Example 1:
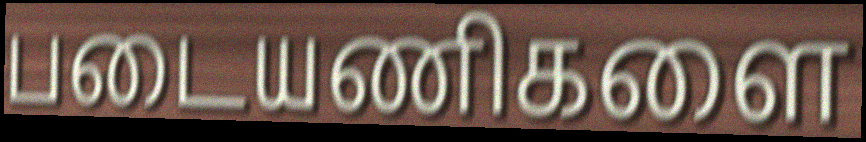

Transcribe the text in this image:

படையணிகளை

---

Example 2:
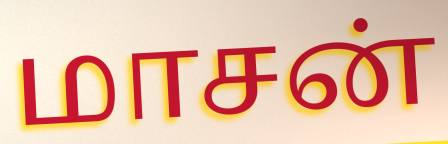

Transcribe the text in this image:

மாசன்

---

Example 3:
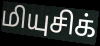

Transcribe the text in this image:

மியுசிக்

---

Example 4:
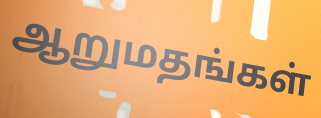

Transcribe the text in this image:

ஆறுமதங்கள்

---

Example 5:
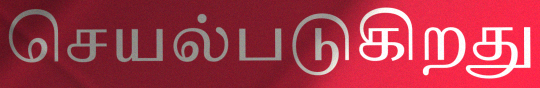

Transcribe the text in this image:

செயல்படுகிறது